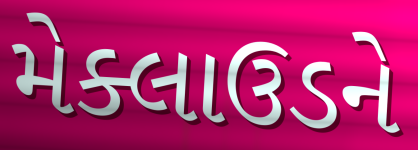
મેક્લાઉડને